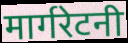
मार्गरेटनी